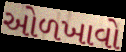
ઓળખાવો